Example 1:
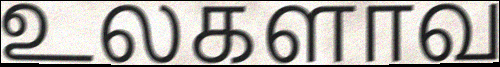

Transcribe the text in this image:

உலகளாவ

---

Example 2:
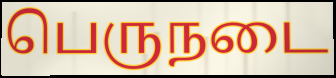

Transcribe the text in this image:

பெருநடை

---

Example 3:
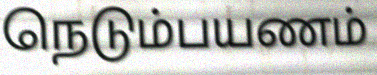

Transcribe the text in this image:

நெடும்பயணம்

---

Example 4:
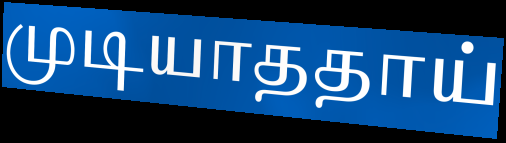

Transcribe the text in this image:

முடியாததாய்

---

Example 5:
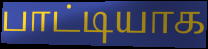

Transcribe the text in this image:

பாட்டியாக